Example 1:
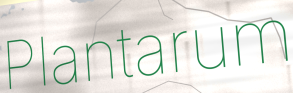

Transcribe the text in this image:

Plantarum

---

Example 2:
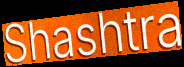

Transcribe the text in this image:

Shashtra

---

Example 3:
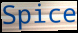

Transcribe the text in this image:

Spice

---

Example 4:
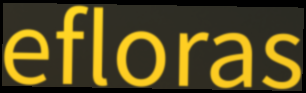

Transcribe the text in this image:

efloras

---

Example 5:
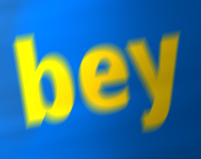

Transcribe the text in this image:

bey